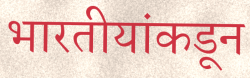
भारतीयांकडून